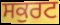
ਸਕੁਰਟ